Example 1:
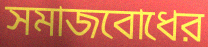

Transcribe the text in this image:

সমাজবোধের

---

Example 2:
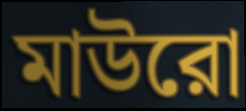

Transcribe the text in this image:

মাউরো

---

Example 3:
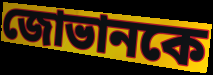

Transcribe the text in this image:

জোভানকে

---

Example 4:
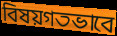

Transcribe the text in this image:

বিষয়গতভাবে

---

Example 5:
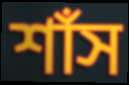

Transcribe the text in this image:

শাঁস